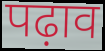
पढ़ाव